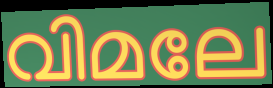
വിമലേ